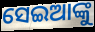
ସେଇଆଙ୍କୁ